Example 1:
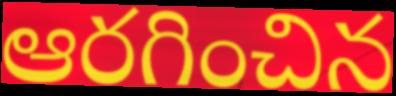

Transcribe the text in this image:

ఆరగించిన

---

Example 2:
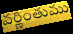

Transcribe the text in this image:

వర్ణింతుము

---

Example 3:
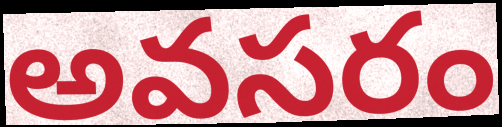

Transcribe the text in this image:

అవసరం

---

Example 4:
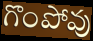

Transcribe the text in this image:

గొంపోవు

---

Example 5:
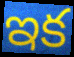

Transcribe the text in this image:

ఇక